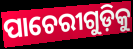
ପାଚେରୀଗୁଡ଼ିକୁ